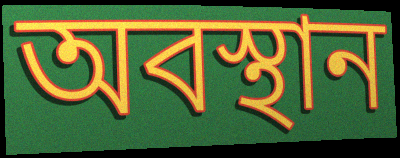
অবস্থান